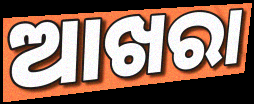
ଆଖରା